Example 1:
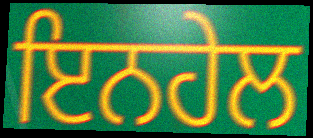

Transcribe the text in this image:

ਇਨਹੇਲ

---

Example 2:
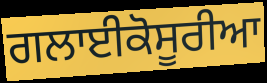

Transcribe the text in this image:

ਗਲਾਈਕੋਸੂਰੀਆ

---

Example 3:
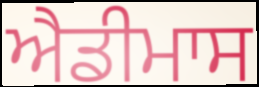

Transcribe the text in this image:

ਐਡੀਮਾਸ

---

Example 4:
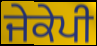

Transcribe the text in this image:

ਜੇਕੇਪੀ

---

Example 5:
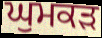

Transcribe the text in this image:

ਘੁਮਕੜ